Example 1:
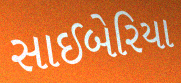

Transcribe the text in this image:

સાઈબેરિયા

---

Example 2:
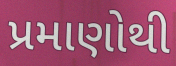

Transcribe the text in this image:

પ્રમાણોથી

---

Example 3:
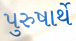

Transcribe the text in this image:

પુરુષાર્થે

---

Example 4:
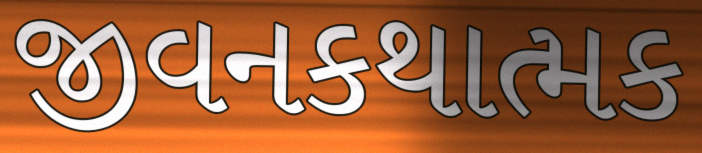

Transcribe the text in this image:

જીવનકથાત્મક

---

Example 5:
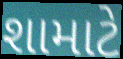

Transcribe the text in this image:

શામાટે